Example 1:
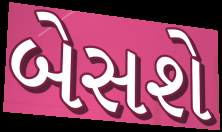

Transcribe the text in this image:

બેસશે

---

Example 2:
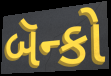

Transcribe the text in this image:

બૅન્કો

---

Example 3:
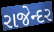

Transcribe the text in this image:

રાજેન્દર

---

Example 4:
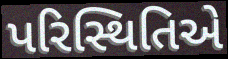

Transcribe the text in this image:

પરિસ્થિતિએ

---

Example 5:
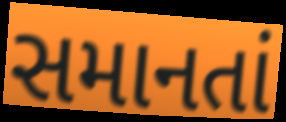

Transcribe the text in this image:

સમાનતાં